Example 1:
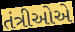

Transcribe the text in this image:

તંત્રીઓએ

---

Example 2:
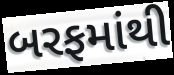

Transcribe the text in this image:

બરફમાંથી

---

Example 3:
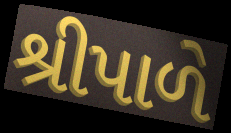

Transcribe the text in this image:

શ્રીપાળે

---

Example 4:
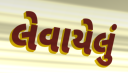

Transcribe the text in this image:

લેવાયેલું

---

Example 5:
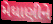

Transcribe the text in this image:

મેઘાણીને